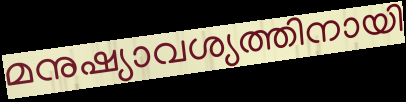
മനുഷ്യാവശ്യത്തിനായി